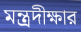
মন্ত্রদীক্ষার